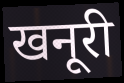
खनूरी